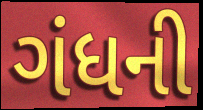
ગંધની